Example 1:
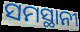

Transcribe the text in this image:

ସମସ୍ଥାନୀ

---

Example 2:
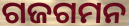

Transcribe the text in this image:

ଗଜଗମନ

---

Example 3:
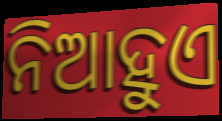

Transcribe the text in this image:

ନିଆହୁଏ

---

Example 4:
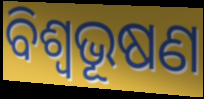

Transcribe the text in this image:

ବିଶ୍ବଭୂଷଣ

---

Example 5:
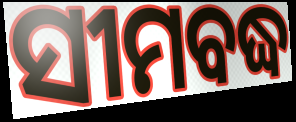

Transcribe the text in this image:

ସୀମବଦ୍ଧ